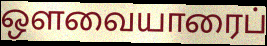
ஔவையாரைப்